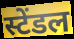
स्टेंडल